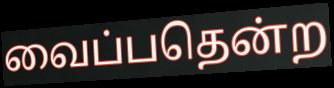
வைப்பதென்ற